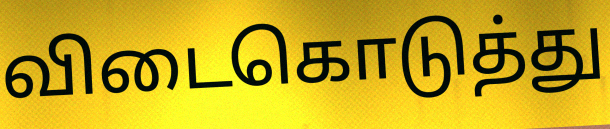
விடைகொடுத்து